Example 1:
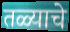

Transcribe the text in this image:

तळ्याचे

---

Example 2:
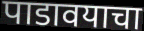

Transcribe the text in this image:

पाडावयाचा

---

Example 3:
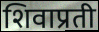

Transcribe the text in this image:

शिवाप्रती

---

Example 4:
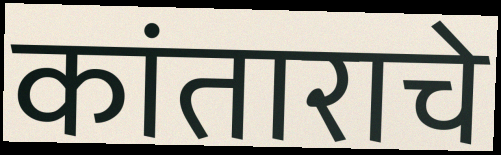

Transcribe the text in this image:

कांताराचे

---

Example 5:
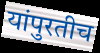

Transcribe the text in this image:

यांपुरतीच